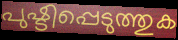
പുഷ്ടിപ്പെടുത്തുക